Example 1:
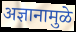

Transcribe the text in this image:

अज्ञानामुळे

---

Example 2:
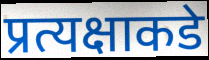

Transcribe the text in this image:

प्रत्यक्षाकडे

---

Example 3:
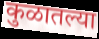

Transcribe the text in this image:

कुळातल्या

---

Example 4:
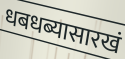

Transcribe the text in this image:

धबधब्यासारखं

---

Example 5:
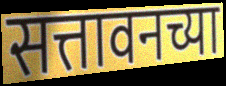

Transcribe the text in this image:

सत्तावनच्या